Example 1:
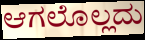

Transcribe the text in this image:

ಆಗಲೊಲ್ಲದು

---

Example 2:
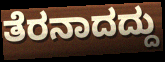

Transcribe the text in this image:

ತೆರನಾದದ್ದು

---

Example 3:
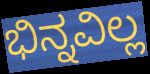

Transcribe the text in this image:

ಭಿನ್ನವಿಲ್ಲ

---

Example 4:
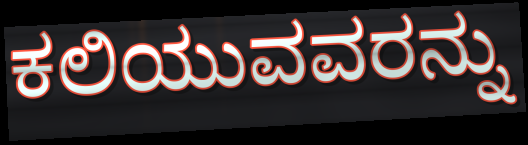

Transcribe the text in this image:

ಕಲಿಯುವವರನ್ನು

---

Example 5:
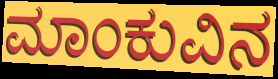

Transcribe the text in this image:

ಮಾಂಕುವಿನ